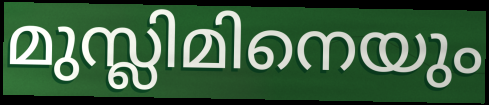
മുസ്ലിമിനെയും